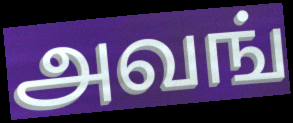
அவங்